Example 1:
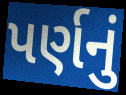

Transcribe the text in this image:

પર્ણનું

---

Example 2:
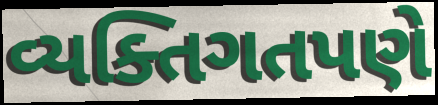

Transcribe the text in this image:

વ્યક્તિગતપણે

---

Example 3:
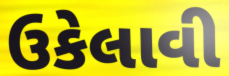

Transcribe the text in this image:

ઉકેલાવી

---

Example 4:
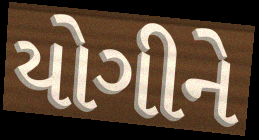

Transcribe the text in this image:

યોગીને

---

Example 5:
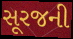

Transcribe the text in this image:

સૂરજની